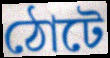
ঠোটে